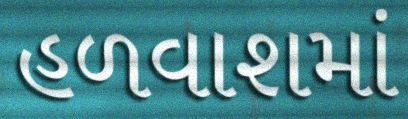
હળવાશમાં